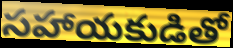
సహాయకుడితో